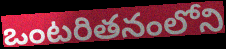
ఒంటరితనంలోని